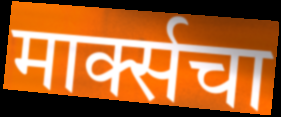
मार्क्सचा